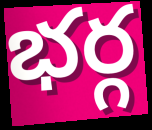
భర్గ